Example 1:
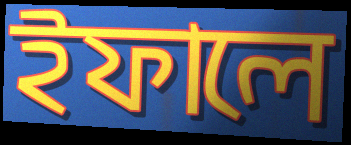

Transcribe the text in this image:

ইফালে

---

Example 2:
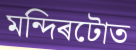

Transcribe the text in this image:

মন্দিৰটোত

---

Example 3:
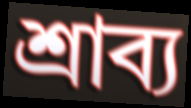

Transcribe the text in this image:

শ্ৰাব্য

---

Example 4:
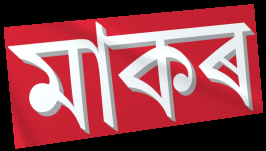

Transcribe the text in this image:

মাকৰ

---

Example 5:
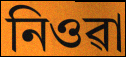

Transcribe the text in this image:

নিওৱা